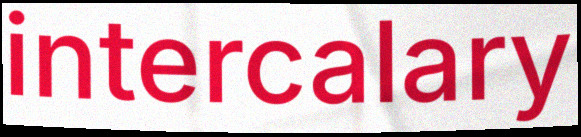
intercalary